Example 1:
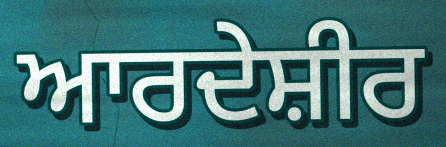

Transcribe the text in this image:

ਆਰਦੇਸ਼ੀਰ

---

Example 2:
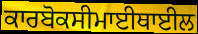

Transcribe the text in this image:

ਕਾਰਬੋਕਸੀਮਾਈਥਾਈਲ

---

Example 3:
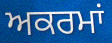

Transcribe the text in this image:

ਅਕਰਮਾਂ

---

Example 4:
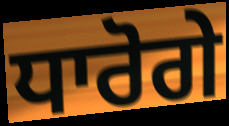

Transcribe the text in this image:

ਧਾਰੋਗੇ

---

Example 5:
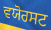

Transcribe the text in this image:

ਵਯੋਰਸਟ